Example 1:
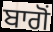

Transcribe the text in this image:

ਬਾਗੋਂ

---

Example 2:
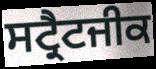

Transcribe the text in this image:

ਸਟ੍ਰੈਟਜੀਕ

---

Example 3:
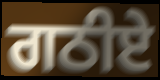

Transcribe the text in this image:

ਗਠੀਏ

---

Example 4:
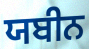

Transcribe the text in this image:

ਯਬੀਨ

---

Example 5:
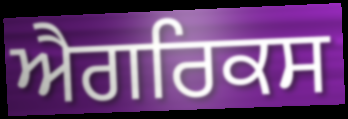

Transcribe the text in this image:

ਐਗਰਿਕਸ